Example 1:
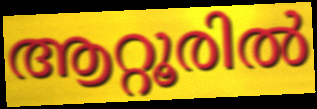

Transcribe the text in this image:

ആറ്റൂരിൽ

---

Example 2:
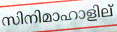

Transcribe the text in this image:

സിനിമാഹാളില്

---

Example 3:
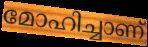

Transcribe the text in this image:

മോഹിച്ചാണ്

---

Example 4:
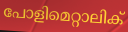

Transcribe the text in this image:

പോളിമെറ്റാലിക്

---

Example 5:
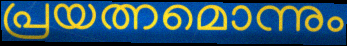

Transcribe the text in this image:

പ്രയത്നമൊന്നും